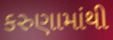
કરુણામાંથી